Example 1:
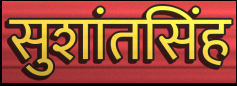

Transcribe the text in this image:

सुशांतसिंह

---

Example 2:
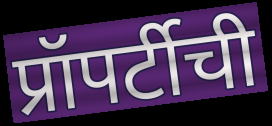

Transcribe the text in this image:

प्रॉपर्टीची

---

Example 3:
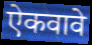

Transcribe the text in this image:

ऐकवावे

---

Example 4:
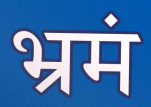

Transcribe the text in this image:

भ्रमं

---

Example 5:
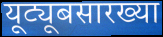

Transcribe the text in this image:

यूट्यूबसारख्या